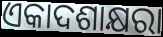
ଏକାଦଶାକ୍ଷରା